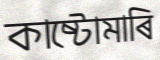
কাষ্টোমাৰি